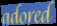
adored